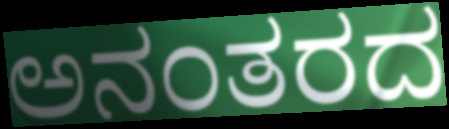
ಅನಂತರದ